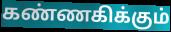
கண்ணகிக்கும்